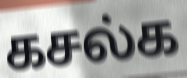
கசல்க